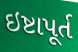
ઇષ્ટાપૂર્ત